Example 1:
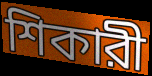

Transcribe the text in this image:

শিকারী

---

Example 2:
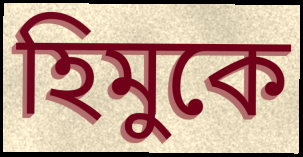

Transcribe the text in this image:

হিমুকে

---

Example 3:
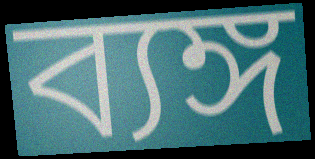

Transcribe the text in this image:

ব্যঙ্গ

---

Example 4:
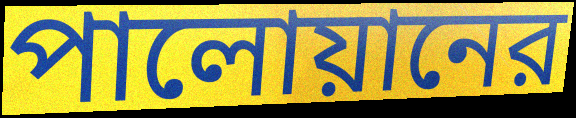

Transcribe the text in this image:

পালোয়ানের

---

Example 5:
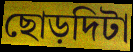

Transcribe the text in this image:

ছোড়দিটা